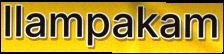
Ilampakam